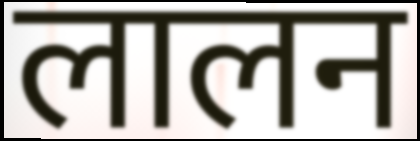
लालन